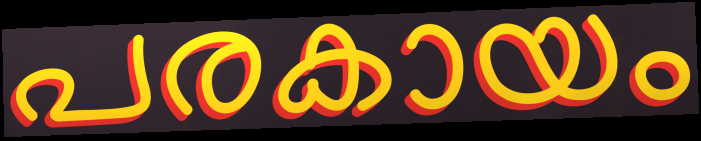
പരകായം